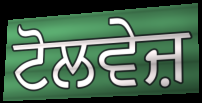
ਟੋਲਵੇਜ਼